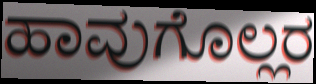
ಹಾವುಗೊಲ್ಲರ